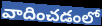
వాదించడంలో